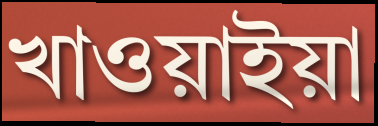
খাওয়াইয়া